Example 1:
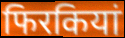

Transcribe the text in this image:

फिरकियां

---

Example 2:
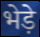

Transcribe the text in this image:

भेड़े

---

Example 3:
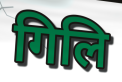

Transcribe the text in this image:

गिलि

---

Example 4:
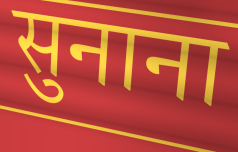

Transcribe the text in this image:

सुनाना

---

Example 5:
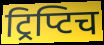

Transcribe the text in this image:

ट्रिप्टिच